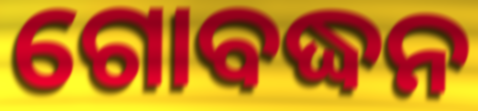
ଗୋବଦ୍ଧନ